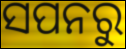
ସପନରୁ